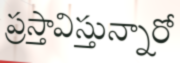
ప్రస్తావిస్తున్నారో